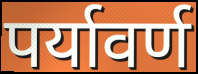
पर्यावर्ण